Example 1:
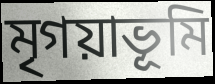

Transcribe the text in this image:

মৃগয়াভূমি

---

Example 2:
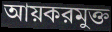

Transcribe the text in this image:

আয়করমুক্ত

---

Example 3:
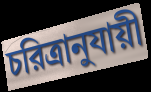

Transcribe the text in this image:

চরিত্রানুযায়ী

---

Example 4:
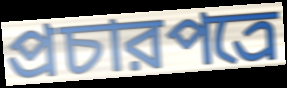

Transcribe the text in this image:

প্রচারপত্রে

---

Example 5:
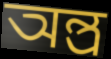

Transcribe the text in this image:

অন্ত্র